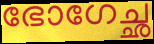
ഭോഗേച്ഛ